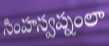
సింహస్వప్నంలా